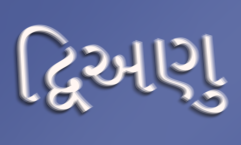
દ્વિઅણુ